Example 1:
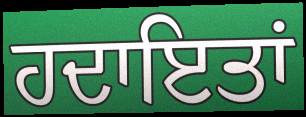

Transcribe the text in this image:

ਹਦਾਇਤਾਂ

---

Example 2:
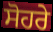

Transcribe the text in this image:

ਸੋਹਰੇ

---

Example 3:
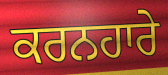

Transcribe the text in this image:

ਕਰਨਹਾਰੇ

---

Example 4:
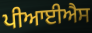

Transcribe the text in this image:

ਪੀਆਈਐਸ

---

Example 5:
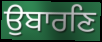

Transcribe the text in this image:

ਉਬਾਰਣਿ